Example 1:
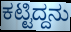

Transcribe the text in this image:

ಕಟ್ಟಿದ್ದನು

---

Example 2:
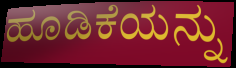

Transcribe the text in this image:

ಹೂಡಿಕೆಯನ್ನು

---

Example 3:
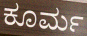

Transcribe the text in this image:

ಕೂರ್ಮ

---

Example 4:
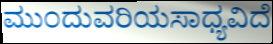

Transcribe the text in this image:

ಮುಂದುವರಿಯಸಾಧ್ಯವಿದೆ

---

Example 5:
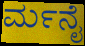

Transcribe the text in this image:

ರ್ಮನೈ